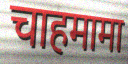
चाहमामा